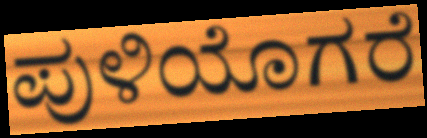
ಪುಳಿಯೊಗರೆ